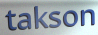
takson